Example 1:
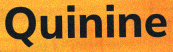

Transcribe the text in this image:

Quinine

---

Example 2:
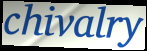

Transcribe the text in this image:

chivalry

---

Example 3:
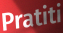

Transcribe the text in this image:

Pratiti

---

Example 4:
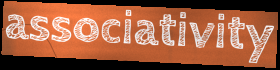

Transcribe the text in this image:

associativity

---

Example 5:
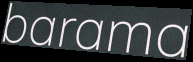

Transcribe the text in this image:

barama